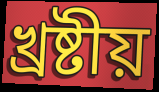
খ্রষ্টীয়